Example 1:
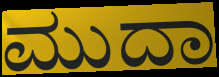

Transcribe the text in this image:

ಮುದಾ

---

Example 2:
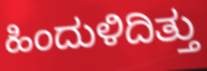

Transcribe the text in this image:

ಹಿಂದುಳಿದಿತ್ತು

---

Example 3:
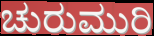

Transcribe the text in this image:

ಚುರುಮುರಿ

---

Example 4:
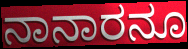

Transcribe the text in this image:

ನಾನಾರನೂ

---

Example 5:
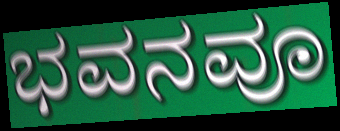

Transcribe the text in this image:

ಭವನವೂ